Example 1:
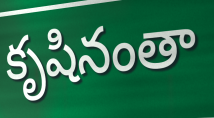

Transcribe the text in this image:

కృషినంతా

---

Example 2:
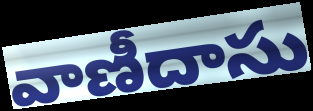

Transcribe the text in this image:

వాణీదాసు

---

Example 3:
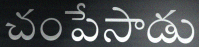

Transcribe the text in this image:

చంపేసాడు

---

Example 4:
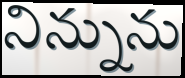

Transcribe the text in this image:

నిన్నును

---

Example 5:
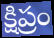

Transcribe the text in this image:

క్షిప్రం